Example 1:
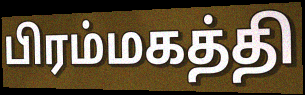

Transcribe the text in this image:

பிரம்மகத்தி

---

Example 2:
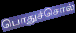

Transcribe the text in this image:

பொதுச்சொல்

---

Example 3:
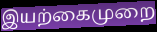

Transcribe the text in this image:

இயற்கைமுறை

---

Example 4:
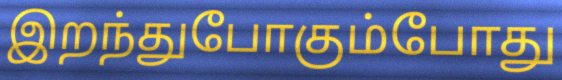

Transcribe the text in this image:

இறந்துபோகும்போது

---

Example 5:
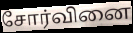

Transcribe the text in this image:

சோர்வினை